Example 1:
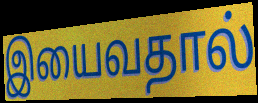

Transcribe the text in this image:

இயைவதால்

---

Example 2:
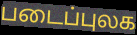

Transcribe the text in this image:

படைப்புலக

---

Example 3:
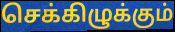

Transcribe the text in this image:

செக்கிழுக்கும்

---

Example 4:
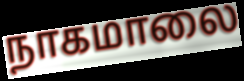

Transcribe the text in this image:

நாகமாலை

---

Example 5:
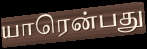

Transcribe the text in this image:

யாரென்பது